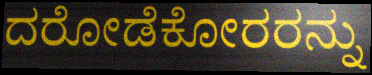
ದರೋಡೆಕೋರರನ್ನು